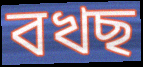
বখছ